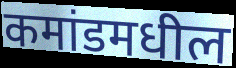
कमांडमधील